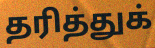
தரித்துக்